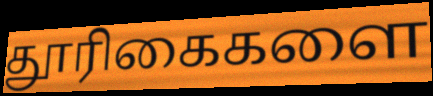
தூரிகைகளை